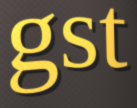
gst